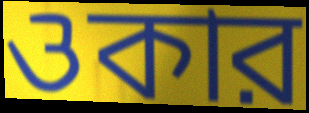
ওকার